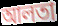
আলতা